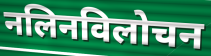
नलिनविलोचन